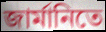
জার্মানিতে